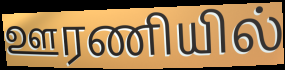
ஊரணியில்